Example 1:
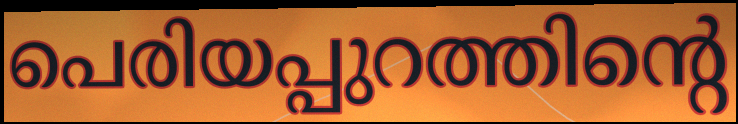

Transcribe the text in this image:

പെരിയപ്പുറത്തിന്റെ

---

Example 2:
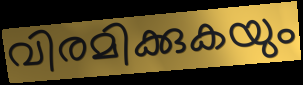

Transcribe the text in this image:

വിരമിക്കുകയും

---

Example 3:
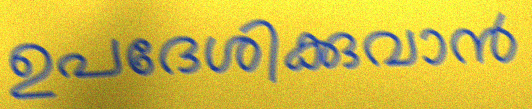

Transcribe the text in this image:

ഉപദേശിക്കുവാൻ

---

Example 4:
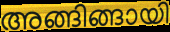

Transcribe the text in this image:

അങ്ങിങ്ങായി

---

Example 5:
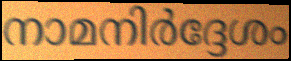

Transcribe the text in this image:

നാമനിർദ്ദേശം